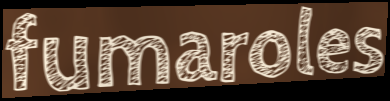
fumaroles